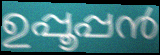
ഉപ്പൂപ്പൻ